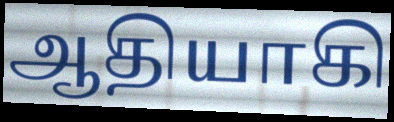
ஆதியாகி